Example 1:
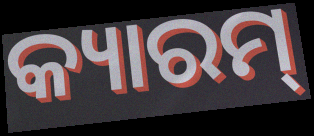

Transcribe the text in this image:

କ୍ୟାରମ୍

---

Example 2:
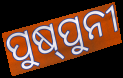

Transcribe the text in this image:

ପୁଷ୍‌ପୁନୀ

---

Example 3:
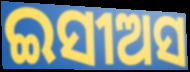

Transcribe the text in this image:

ଇସୀଅସ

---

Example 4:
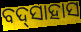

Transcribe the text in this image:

ବଦ୍‌ସାହାସ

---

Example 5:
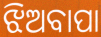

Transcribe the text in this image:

ଝିଅବାପା